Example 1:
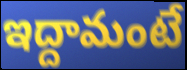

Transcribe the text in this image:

ఇద్దామంటే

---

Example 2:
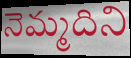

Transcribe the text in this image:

నెమ్మదిని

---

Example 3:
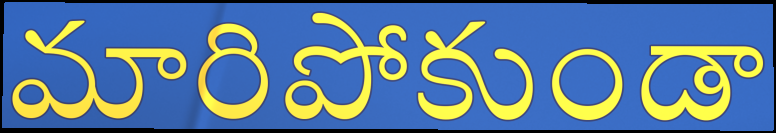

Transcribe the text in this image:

మారిపోకుండా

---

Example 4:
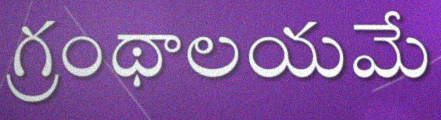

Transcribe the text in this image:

గ్రంథాలయమే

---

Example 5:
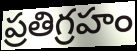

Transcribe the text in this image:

ప్రతిగ్రహం